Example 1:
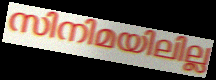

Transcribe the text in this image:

സിനിമയിലില്ല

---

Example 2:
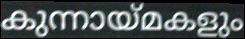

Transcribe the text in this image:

കുന്നായ്മകളും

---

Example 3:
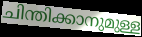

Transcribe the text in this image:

ചിന്തിക്കാനുമുള്ള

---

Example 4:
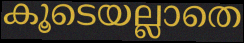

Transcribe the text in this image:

കൂടെയല്ലാതെ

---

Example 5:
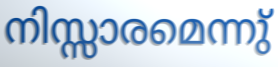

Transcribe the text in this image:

നിസ്സാരമെന്നു്